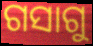
ଗସାଗୁ